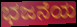
ಭಜನೆಯ